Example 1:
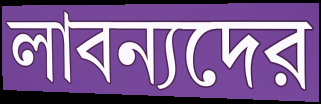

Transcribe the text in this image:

লাবন্যদের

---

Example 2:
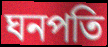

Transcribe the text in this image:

ঘনপতি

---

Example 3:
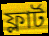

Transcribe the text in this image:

ফ্লার্ট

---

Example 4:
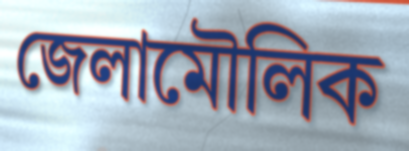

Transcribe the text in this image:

জেলামৌলিক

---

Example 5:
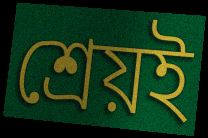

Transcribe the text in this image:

শ্রেয়ই